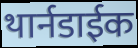
थार्नडाईक